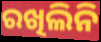
ରଖିଲିନି